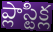
ప్లాస్టిక్ల